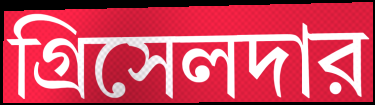
গ্রিসেলদার